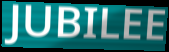
JUBILEE